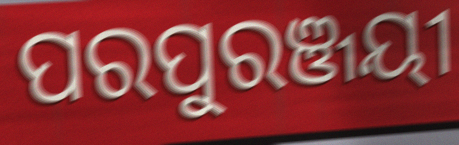
ପରପୁରଞ୍ଜୟୀ